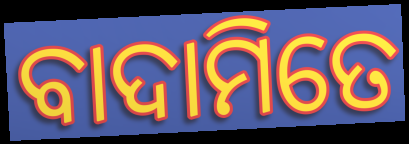
ବାଦାମିତେ